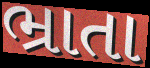
ભ્રાતા